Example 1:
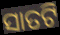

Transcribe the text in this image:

ସାତଟି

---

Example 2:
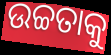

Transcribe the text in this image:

ଉଚ୍ଚତାକୁ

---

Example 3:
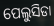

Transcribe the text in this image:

ପେଲୁସିଡା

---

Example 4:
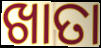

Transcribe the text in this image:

ଖାତା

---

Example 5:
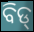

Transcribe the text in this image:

ବିଡ୍